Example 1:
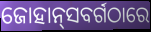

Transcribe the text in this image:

ଜୋହାନ୍‌ସବର୍ଗଠାରେ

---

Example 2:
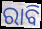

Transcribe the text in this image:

ରାବି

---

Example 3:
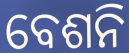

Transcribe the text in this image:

ବେଶନି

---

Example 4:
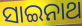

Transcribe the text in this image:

ସାଇନାଥ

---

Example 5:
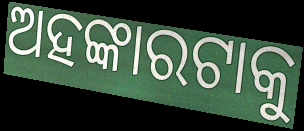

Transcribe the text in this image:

ଅହଙ୍କାରଟାକୁ